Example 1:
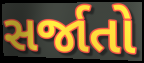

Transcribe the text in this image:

સર્જાતો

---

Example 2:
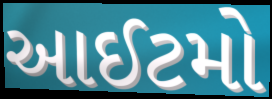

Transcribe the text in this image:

આઈટમો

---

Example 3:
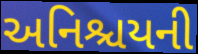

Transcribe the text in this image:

અનિશ્ચયની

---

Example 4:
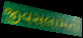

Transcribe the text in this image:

જીવસલામતી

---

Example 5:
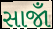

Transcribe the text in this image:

સાજાઁ